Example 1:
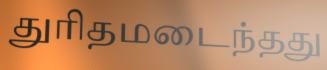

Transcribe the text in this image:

துரிதமடைந்தது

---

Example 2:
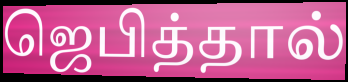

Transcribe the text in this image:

ஜெபித்தால்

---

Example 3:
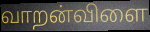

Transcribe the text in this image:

வாறன்விளை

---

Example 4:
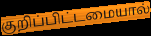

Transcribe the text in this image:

குறிப்பிட்டமையால்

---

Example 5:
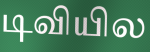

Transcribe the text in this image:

டிவியில